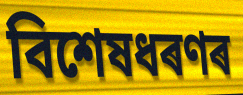
বিশেষধৰণৰ